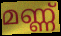
മണ്ണ്